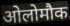
ओलोमौक